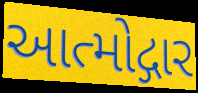
આત્મોદ્ગાર